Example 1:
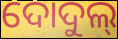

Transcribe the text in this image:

ଦୋଦୁଲ୍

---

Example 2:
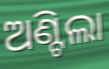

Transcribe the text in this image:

ଅଣ୍ଟିଲା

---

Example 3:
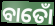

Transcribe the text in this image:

ବାତୋଁ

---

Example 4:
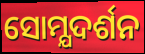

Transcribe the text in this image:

ସୋମ୍ଯଦର୍ଶନ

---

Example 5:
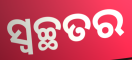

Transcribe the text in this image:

ସ୍ଵଚ୍ଛତର